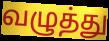
வழுத்து